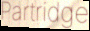
Partridge